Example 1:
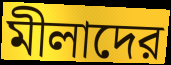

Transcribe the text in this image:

মীলাদের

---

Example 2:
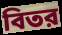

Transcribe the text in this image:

বিতর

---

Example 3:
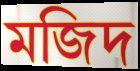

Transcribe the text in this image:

মজিদ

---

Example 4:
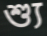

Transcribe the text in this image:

শ্যু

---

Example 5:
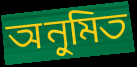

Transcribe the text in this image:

অনুমিত